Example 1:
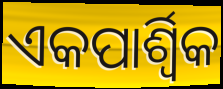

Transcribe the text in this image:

ଏକପାର୍ଶ୍ୱିକ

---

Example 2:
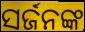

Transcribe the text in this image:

ସର୍ଜନଙ୍କ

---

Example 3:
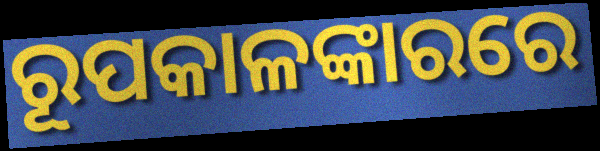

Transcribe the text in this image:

ରୂପକାଳଙ୍କାରରେ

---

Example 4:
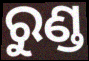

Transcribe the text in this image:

ରୁଣ୍ଡ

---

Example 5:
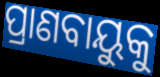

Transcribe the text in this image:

ପ୍ରାଣବାୟୁକୁ